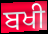
ਬਖੀ